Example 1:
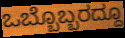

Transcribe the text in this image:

ಒಬ್ಬೊಬ್ಬರದ್ದೂ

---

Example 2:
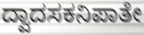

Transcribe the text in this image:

ದ್ವಾದಸಕನಿಪಾತೇ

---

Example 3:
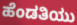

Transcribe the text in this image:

ಹೆಂಡತಿಯು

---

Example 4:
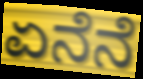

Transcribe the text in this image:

ಏನೆನೆ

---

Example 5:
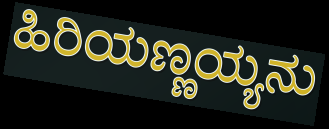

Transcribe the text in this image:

ಹಿರಿಯಣ್ಣಯ್ಯನು